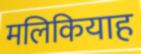
मलिकियाह